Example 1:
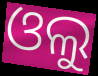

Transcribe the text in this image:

ଓଲୁ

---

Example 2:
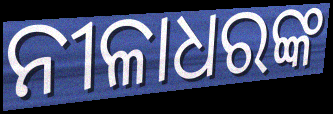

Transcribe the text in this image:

ନୀଳାଧରଙ୍କ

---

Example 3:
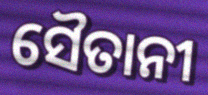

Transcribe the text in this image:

ସୈତାନୀ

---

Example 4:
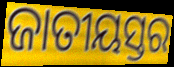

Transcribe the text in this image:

ଜାତୀୟସ୍ତର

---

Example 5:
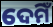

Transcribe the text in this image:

ଦେମିଁ